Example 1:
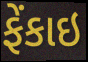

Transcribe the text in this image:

ફેંકાઇ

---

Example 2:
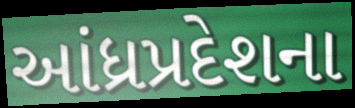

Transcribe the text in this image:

આંધ્રપ્રદેશના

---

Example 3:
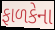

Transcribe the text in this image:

ફાળકેના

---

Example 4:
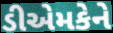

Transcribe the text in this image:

ડીએમકેને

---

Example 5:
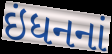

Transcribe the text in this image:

ઇંધનનાં